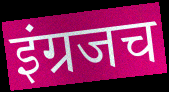
इंग्रजच